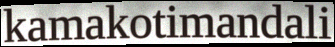
kamakotimandali